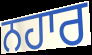
ਨਹਾਰ